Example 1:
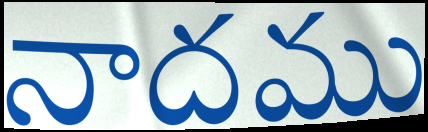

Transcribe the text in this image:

నాదము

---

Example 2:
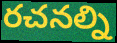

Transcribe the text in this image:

రచనల్ని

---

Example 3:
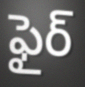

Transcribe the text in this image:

ఫైర్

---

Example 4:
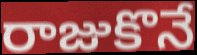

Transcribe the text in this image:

రాజుకొనే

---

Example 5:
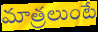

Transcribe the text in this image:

మాత్రలుంటే